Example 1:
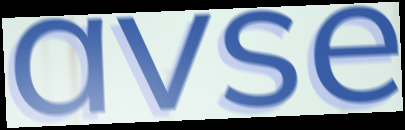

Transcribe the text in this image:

avse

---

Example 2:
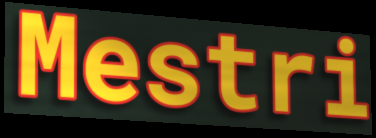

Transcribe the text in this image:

Mestri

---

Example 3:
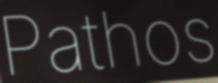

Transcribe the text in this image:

Pathos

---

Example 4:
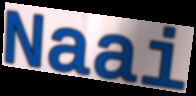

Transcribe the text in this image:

Naai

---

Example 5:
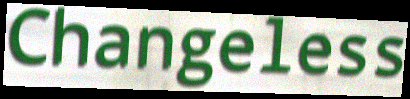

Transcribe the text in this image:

Changeless